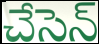
చేసెన్